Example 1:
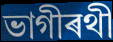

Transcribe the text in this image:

ভাগীৰথী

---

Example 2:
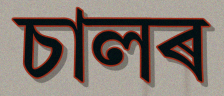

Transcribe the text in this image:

চালৰ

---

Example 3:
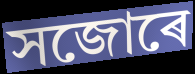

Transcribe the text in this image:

সজোৰে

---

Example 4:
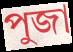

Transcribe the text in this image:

পুজা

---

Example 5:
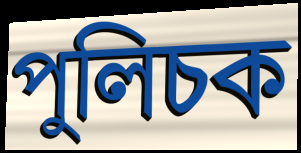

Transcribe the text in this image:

পুলিচক